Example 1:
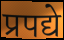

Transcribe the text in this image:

प्रपद्ये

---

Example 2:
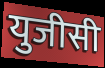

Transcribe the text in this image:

युजीसी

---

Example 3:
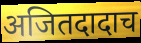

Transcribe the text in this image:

अजितदादाच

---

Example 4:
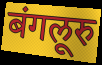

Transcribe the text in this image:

बंगलूरु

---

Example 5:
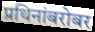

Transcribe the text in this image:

प्रथिनांबरोबर